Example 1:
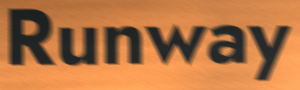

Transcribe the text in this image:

Runway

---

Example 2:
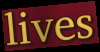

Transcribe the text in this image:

lives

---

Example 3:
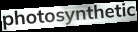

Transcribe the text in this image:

photosynthetic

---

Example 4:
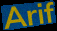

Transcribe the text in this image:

Arif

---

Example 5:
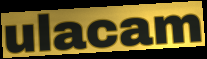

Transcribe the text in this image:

ulacam